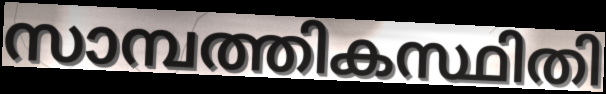
സാമ്പത്തികസ്ഥിതി